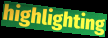
highlighting